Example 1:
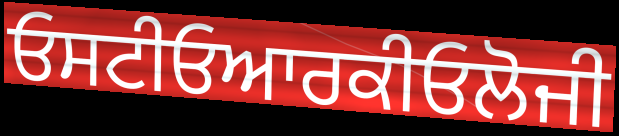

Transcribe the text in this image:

ਓਸਟੀਓਆਰਕੀਓਲੋਜੀ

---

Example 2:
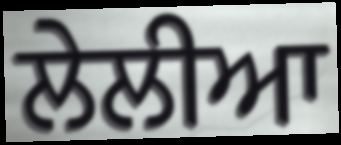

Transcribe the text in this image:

ਲੇਲੀਆ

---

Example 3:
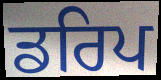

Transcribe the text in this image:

ਡਰਿਪ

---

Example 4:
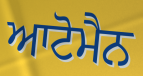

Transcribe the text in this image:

ਆਟੋਮੈਨ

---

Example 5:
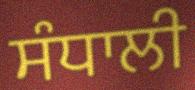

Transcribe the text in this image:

ਸੰਧਾਲੀ